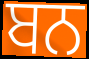
ਬਨ